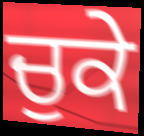
ਚੁਕੇ